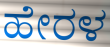
ಹೇರಳ